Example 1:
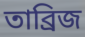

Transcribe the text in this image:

তাব্রিজ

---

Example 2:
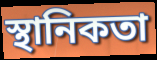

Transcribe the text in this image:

স্থানিকতা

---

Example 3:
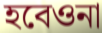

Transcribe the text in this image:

হবেওনা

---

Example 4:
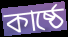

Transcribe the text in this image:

কাষ্ঠে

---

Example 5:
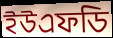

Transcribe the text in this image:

ইউএফডি